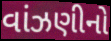
વાંઝણીનો